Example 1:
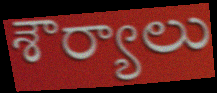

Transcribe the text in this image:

శౌర్యాలు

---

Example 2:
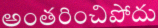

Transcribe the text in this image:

అంతరించిపోదు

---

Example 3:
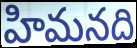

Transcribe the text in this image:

హిమనది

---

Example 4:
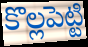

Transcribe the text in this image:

కొల్లపెట్టి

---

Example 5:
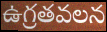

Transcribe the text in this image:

ఉగ్రతవలన